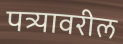
पत्र्यावरील